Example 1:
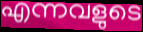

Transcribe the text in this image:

എന്നവളുടെ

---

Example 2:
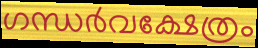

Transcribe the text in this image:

ഗന്ധർവക്ഷേത്രം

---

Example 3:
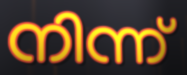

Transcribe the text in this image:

നിന്ന്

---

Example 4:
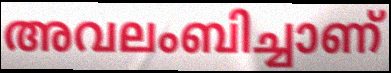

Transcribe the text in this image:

അവലംബിച്ചാണ്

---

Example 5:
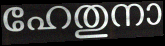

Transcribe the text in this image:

ഹേതുനാ